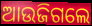
ଆଉଜିଗଲେ